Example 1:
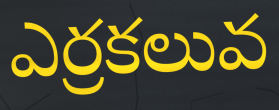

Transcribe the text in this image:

ఎర్రకలువ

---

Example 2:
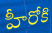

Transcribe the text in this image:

హీరోకి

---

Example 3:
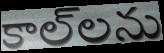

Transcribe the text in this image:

కాల్‌లను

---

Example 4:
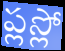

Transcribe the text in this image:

ప్లస్లో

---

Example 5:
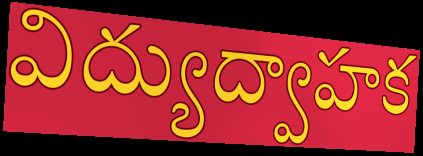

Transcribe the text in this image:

విద్యుద్వాహక